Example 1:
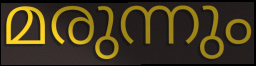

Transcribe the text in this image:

മരുന്നും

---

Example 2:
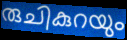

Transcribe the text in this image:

രുചികുറയും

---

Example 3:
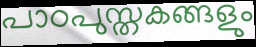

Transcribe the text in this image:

പാഠപുസ്തകങ്ങളും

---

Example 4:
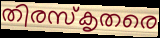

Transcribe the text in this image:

തിരസ്കൃതരെ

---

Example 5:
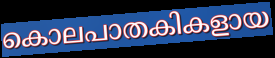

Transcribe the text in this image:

കൊലപാതകികളായ